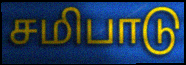
சமிபாடு